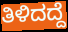
ತಿಳಿದದ್ದೆ